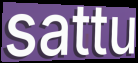
sattu